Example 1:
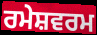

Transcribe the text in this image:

ਰਮੇਸ਼ਵਰਮ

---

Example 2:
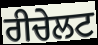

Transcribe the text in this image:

ਰੀਚੇਲਟ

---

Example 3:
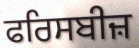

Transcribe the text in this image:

ਫਰਿਸਬੀਜ਼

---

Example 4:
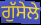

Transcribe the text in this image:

ਗੁੱਸੇਲੇ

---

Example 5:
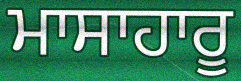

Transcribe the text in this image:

ਮਾਸਾਹਾਰੂ